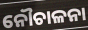
ନୌଚାଳନା